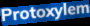
Protoxylem